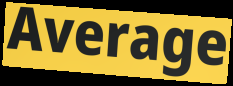
Average